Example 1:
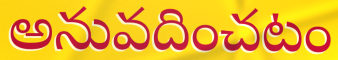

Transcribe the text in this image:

అనువదించటం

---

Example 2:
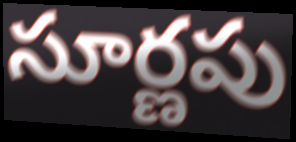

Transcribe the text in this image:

సూర్ణపు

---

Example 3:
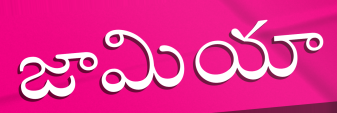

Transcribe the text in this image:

జామియా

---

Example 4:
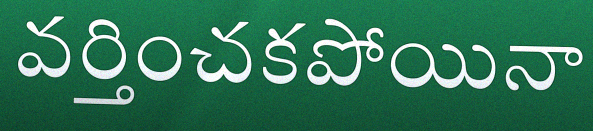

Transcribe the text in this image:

వర్తించకపోయినా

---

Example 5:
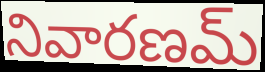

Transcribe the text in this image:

నివారణమ్